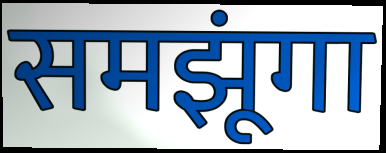
समझूंगा